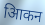
आिकन